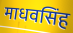
माधवसिंह